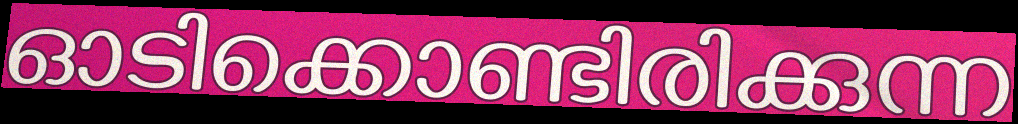
ഓടിക്കൊണ്ടിരിക്കുന്ന